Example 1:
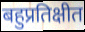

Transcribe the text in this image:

बहुप्रतिक्षीत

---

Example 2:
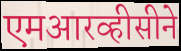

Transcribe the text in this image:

एमआरव्हीसीने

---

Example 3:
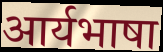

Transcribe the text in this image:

आर्यभाषा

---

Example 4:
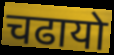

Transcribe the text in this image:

चढायो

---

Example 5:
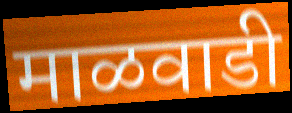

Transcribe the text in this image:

माळवाडी